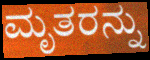
ಮೃತರನ್ನು